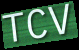
TCV